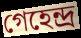
গেহেন্দ্র